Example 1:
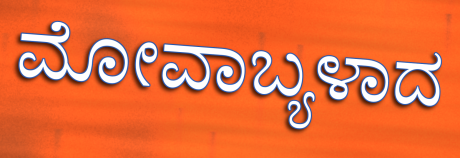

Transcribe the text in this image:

ಮೋವಾಬ್ಯಳಾದ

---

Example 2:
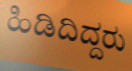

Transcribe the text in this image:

ಹಿಡಿದಿದ್ದರು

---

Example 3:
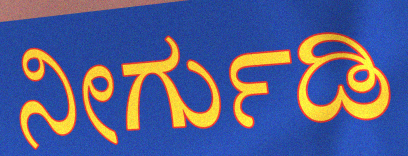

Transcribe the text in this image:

ನೀರ್ಗುಡಿ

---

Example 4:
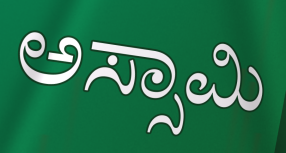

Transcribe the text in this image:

ಅಸ್ಸಾಮಿ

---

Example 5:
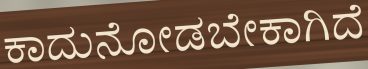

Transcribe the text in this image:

ಕಾದುನೋಡಬೇಕಾಗಿದೆ